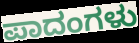
ಪಾದಂಗಳು